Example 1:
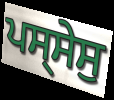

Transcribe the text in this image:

ਪਸ੍ਸੇਸੁ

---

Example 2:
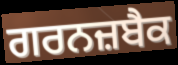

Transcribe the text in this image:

ਗਰਨਜ਼ਬੈਕ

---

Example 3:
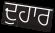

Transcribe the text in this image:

ਦੁਹਾਰ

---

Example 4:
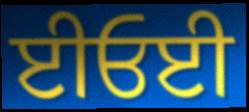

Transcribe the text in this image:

ਈਓਈ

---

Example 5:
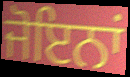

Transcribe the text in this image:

ਜੋਇਨਾਂ